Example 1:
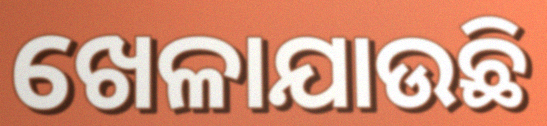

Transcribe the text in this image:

ଖେଳାଯାଉଛି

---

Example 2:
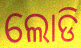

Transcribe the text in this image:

ଲୋଡି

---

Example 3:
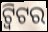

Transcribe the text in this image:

ଟ୍ୱିଟର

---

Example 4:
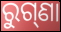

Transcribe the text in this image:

ରୁଗ୍‌ଣା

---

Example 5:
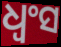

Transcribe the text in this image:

ଧ୍ୱଂସ